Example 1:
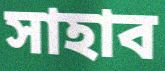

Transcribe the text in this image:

সাহাব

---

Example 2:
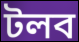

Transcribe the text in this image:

টলব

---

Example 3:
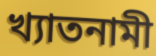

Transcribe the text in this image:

খ্যাতনামী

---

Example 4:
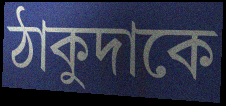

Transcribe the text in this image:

ঠাকুদাকে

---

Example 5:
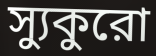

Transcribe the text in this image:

স্যুকুরো